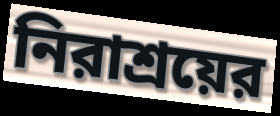
নিরাশ্রয়ের